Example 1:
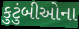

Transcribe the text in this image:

કુટુંબીઓના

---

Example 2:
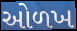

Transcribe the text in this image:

ઓળખ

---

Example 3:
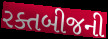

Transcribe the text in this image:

રક્તબીજની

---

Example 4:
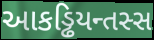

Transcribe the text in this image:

આકડ્ઢિયન્તસ્સ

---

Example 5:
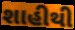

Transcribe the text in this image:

શાહીથી